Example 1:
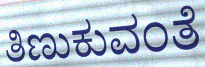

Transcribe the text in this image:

ತಿಣುಕುವಂತೆ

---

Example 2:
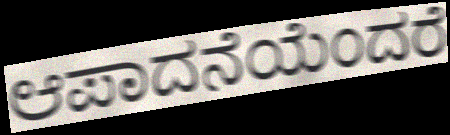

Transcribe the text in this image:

ಆಪಾದನೆಯೆಂದರೆ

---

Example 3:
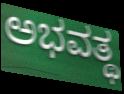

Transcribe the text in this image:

ಅಭವತ್ಥ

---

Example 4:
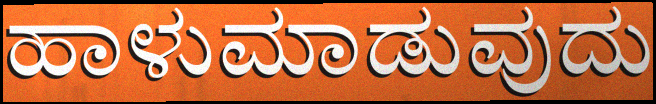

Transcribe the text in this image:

ಹಾಳುಮಾಡುವುದು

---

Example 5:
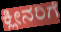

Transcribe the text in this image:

ಕ್ಲೀನರಿಗೆ